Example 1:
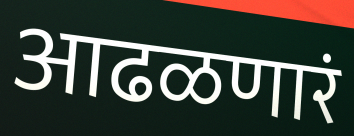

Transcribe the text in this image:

आढळणारं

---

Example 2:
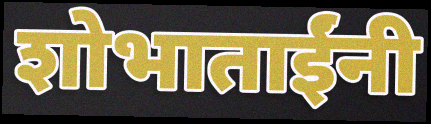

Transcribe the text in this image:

शोभाताईंनी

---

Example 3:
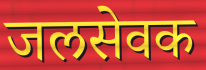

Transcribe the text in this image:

जलसेवक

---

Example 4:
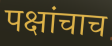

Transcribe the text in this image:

पक्षांचाच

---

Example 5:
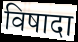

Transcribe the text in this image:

विषादा